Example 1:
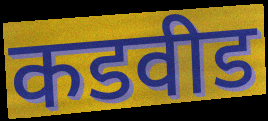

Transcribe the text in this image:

कडवीड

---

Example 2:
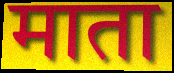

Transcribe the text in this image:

माता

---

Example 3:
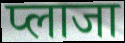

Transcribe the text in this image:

प्लाजा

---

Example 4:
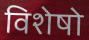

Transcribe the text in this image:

विशेषो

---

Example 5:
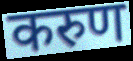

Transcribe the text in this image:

करुण